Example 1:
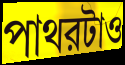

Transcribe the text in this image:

পাথরটাও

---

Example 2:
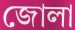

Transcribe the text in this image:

জোলা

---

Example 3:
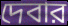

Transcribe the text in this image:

দেবার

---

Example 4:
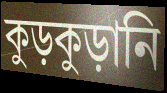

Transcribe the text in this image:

কুড়কুড়ানি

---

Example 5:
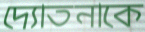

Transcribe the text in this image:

দ্যোতনাকে